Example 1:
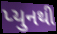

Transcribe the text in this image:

પ્યુનથી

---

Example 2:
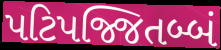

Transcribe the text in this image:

પટિપજ્જિતબ્બં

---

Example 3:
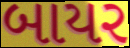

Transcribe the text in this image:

બાયર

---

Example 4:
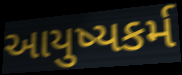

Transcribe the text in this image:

આયુષ્યકર્મ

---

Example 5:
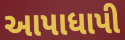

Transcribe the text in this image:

આપાધાપી